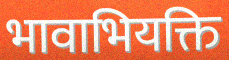
भावाभियक्ति